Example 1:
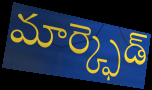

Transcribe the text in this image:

మార్క్ఫెడ్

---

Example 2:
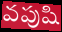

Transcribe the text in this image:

వపుషి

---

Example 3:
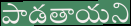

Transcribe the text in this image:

పాడతాయని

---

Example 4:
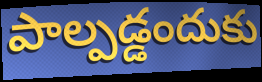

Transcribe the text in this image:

పాల్పడ్డందుకు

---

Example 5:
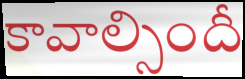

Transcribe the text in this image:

కావాల్సిందీ